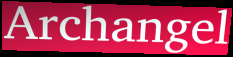
Archangel